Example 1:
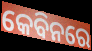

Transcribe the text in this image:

କେବିନରେ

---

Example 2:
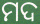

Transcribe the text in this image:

ମଦ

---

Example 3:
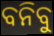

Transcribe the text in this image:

ବନିବୁ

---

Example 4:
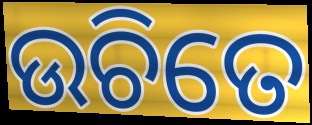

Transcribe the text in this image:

ଉଚିତେ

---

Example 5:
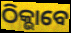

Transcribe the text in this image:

ଠିକ୍ଭାବେ